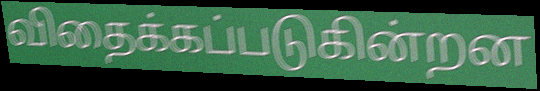
விதைக்கப்படுகின்றன